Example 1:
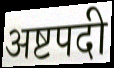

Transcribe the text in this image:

अष्टपदी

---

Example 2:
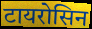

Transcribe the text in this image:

टायरोसिन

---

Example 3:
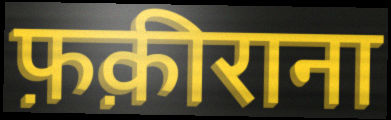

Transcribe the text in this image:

फ़क़ीराना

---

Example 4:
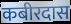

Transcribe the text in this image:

कबीरदास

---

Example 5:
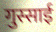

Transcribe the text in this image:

गुस्साई